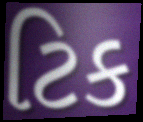
ટિક